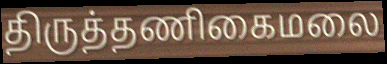
திருத்தணிகைமலை